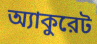
অ্যাকুরেট